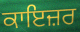
ਕਾਇਜ਼ਰ